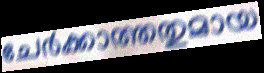
ചേർക്കാത്തതുമായ